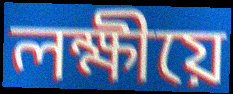
লক্ষীয়ে